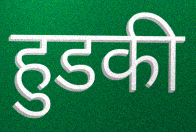
हुडकी